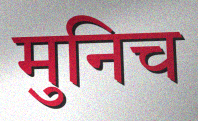
मुनिच